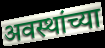
अवस्थांच्या